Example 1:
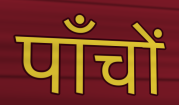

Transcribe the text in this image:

पाँचों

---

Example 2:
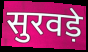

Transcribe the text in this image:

सुरवड़े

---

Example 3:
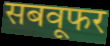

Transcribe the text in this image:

सबवूफर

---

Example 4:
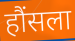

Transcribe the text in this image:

हौंसला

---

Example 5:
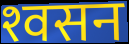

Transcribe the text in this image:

श्वसन